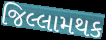
જિલ્લામથક